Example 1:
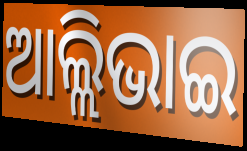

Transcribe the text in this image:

ଆଲ୍ଲିଭାଇ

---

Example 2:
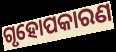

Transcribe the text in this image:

ଗୃହୋପକାରଣ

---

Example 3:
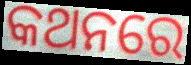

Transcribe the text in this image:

କଥନରେ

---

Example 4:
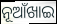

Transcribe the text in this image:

ନୂଆଁଖାଇ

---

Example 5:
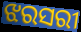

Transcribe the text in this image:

ଝରସରୀ